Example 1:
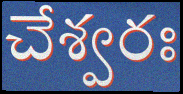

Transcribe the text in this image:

చేశ్వరః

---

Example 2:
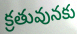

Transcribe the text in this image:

క్రతువునకు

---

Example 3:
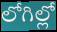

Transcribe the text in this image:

లోగిల్లో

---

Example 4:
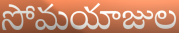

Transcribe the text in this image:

సోమయాజుల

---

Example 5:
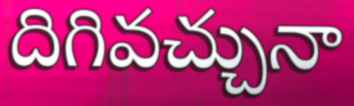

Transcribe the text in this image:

దిగివచ్చునా